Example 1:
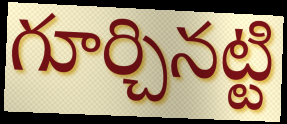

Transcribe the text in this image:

గూర్చినట్టి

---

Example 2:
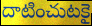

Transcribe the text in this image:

దాటించుటకై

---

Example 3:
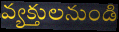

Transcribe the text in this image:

వ్యక్తులనుండి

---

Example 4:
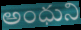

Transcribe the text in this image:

అంధుని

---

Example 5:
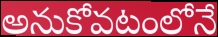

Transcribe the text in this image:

అనుకోవటంలోనే